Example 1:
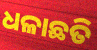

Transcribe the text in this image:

ଧଳାଛତି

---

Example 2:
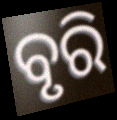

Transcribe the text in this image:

ବୃରି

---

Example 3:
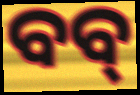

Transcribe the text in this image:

ବବ୍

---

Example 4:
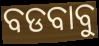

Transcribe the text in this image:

ବଡବାବୁ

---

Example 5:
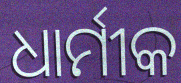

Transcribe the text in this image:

ଧାର୍ମୀକ